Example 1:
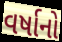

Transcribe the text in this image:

વર્ષાનો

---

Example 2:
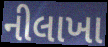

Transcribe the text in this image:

નીલાખા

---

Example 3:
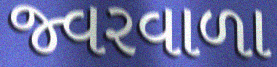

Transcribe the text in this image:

જ્વરવાળા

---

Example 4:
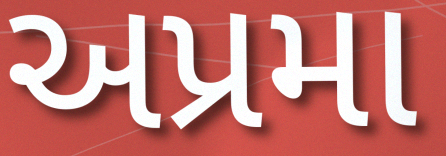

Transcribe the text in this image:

અપ્રમા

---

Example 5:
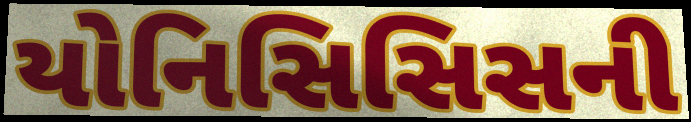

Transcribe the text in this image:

યોનિસિસિસની